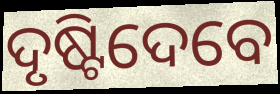
ଦୃଷ୍ଟିଦେବେ